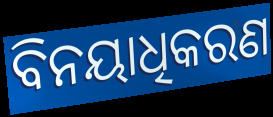
ବିନୟାଧିକରଣ